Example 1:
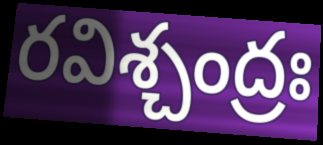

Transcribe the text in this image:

రవిశ్చంద్రః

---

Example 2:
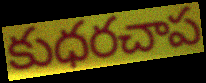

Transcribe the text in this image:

కుధరచాప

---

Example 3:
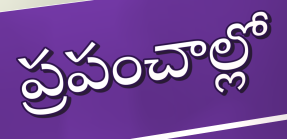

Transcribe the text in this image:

ప్రపంచాల్లో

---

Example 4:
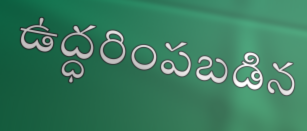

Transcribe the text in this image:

ఉద్ధరింపబడిన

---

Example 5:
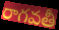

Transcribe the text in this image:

రాగవతీ